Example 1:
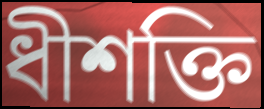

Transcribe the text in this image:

ধীশক্তি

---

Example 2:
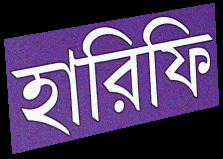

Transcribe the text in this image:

হারিফি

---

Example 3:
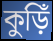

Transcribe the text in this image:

কুড়িঁ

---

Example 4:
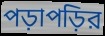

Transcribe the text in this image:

পড়াপড়ির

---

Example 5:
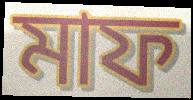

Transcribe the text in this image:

মাফ